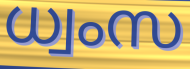
ധ്വംസ